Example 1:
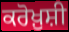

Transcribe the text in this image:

ਕਰੋਖ਼ੁਸ਼ੀ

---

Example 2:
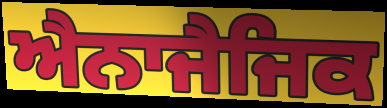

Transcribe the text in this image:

ਐਨਾਜੈਜਿਕ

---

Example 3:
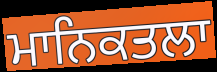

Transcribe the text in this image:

ਮਾਨਿਕਤਲਾ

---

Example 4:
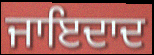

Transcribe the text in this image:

ਜਾਇਦਾਦ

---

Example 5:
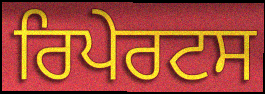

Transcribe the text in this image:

ਰਿਪੇਰਟਸ